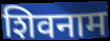
शिवनाम